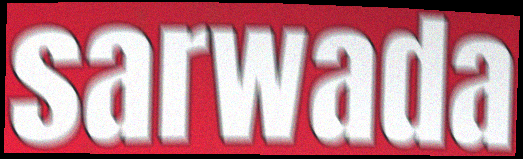
sarwada